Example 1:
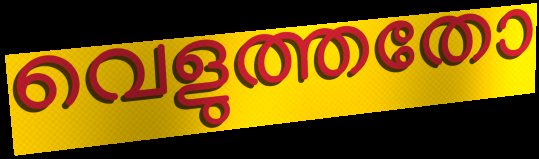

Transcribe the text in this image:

വെളുത്തതോ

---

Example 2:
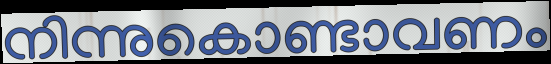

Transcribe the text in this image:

നിന്നുകൊണ്ടാവണം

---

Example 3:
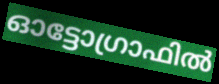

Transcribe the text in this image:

ഓട്ടോഗ്രാഫിൽ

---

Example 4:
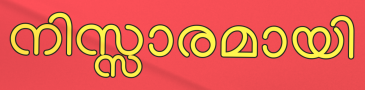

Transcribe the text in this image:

നിസ്സാരമായി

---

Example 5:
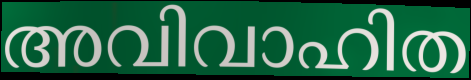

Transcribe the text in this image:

അവിവാഹിത